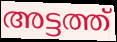
അട്ടത്ത്